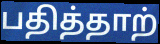
பதித்தாற்